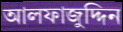
আলফাজুদ্দিন